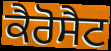
ਕੈਰੋਸੈਟ